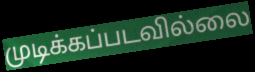
முடிக்கப்படவில்லை